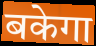
बकेगा